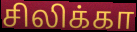
சிலிக்கா